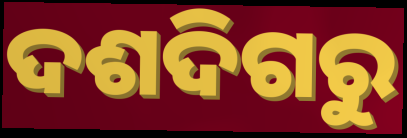
ଦଶଦିଗରୁ